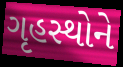
ગૃહસ્થોને